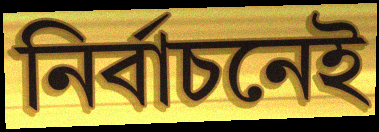
নির্বাচনেই